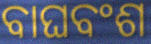
ବାଘବଂଶ